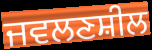
ਜਵਲਣਸ਼ੀਲ